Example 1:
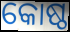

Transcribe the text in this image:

କୋଷ୍ଠ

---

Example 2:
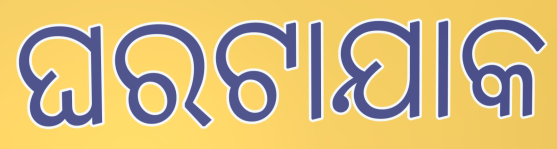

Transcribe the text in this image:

ଘରଟାଯାକ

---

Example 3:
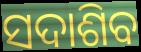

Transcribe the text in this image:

ସଦାଶିବ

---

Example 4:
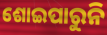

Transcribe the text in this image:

ଶୋଇପାରୁନି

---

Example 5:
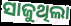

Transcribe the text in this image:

ସାଜୁଥିଲା